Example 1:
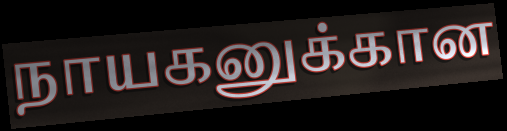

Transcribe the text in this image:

நாயகனுக்கான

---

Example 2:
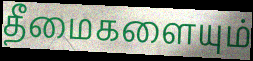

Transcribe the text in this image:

தீமைகளையும்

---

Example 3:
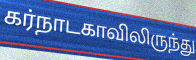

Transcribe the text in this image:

கர்நாடகாவிலிருந்து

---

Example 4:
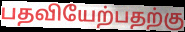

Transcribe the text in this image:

பதவியேற்பதற்கு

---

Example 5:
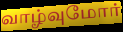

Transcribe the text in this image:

வாழ்வுமோர்